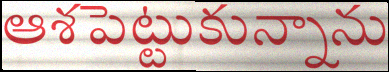
ఆశపెట్టుకున్నాను